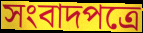
সংবাদপত্রে